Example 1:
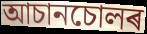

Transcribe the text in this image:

আচানচোলৰ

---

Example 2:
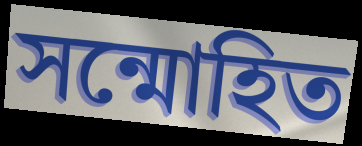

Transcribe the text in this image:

সন্মোহিত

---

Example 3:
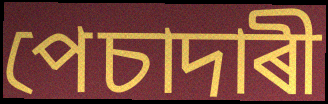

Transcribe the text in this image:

পেচাদাৰী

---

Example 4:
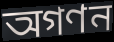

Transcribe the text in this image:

অগণন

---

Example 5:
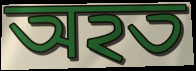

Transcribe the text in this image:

অহত